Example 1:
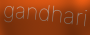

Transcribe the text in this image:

gandhari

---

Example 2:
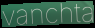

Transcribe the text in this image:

vanchta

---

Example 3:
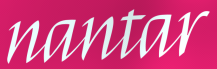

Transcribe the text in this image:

nantar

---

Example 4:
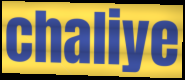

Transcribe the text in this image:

chaliye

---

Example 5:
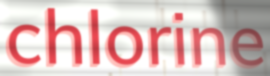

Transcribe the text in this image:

chlorine